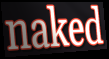
naked